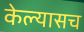
केल्यासच